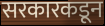
सरकारकडून